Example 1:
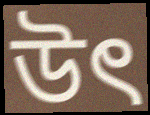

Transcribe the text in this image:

উৎ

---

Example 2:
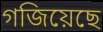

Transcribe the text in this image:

গজিয়েছে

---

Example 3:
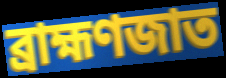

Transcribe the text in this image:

ব্রাহ্মণজাত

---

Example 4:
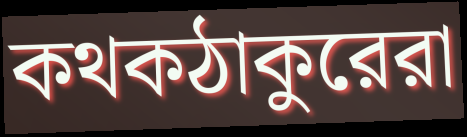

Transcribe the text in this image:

কথকঠাকুরেরা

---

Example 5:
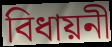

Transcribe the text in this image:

বিধায়নী